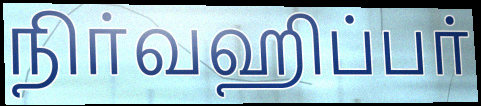
நிர்வஹிப்பர்